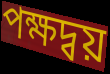
পক্ষদ্বয়